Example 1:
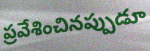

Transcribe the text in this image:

ప్రవేశించినప్పుడూ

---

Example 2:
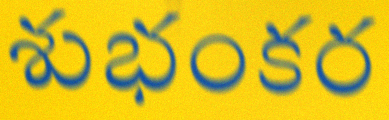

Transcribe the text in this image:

శుభంకర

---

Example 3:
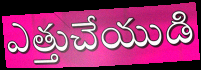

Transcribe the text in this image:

ఎత్తుచేయుడి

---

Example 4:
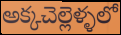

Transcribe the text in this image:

అక్కచెల్లెళ్ళలో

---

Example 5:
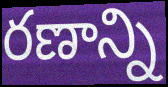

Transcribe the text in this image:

రణాన్ని